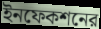
ইনফেকশনের